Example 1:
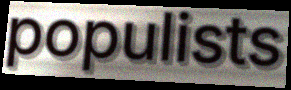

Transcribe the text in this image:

populists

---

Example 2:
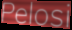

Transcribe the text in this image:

Pelosi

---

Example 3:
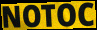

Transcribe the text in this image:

NOTOC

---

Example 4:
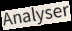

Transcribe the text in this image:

Analyser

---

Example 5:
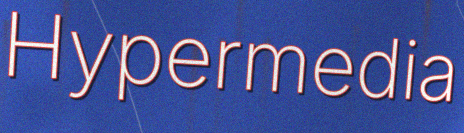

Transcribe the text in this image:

Hypermedia